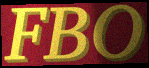
FBO